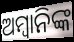
ଅମ୍ବାନିଙ୍କ